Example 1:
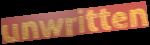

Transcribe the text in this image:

unwritten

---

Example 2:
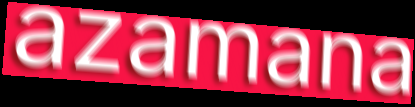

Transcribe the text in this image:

azamana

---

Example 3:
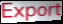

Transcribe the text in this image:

Export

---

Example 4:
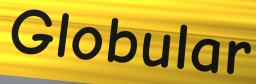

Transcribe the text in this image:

Globular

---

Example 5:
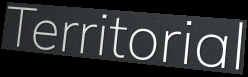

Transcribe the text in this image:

Territorial